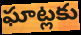
ఘాట్లకు